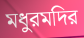
মধুরমদির